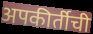
अपकीर्तीची